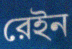
রেইন